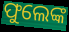
ଫୁଲେଙ୍କ